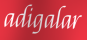
adigalar